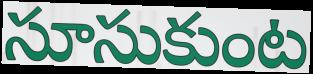
సూసుకుంట